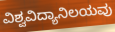
ವಿಶ್ವವಿದ್ಯಾನಿಲಯವು